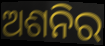
ଅଶନିର